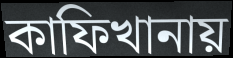
কাফিখানায়